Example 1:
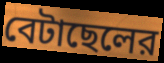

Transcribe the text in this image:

বেটাছেলের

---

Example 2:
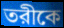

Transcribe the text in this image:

তরীকে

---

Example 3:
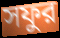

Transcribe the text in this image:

সফুর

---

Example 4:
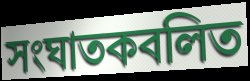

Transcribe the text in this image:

সংঘাতকবলিত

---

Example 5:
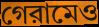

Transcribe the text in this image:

গেরামেও